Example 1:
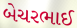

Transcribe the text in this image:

બેચરભાઈ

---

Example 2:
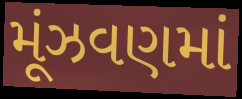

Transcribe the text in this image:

મૂંઝવણમાં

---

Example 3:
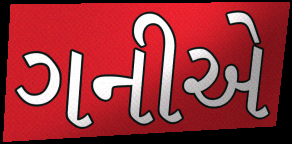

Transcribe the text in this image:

ગનીએ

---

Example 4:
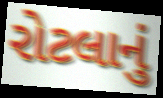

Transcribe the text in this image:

રોટલાનું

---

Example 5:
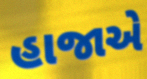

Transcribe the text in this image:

હાજાએ